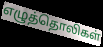
எழுத்தொலிகள்